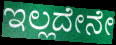
ಇಲ್ಲದೇನೇ